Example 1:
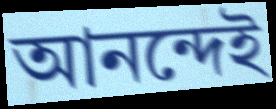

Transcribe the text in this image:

আনন্দেই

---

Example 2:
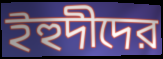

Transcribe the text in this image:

ইহুদীদের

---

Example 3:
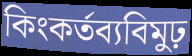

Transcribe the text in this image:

কিংকর্তব্যবিমুঢ়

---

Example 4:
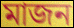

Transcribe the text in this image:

মাজন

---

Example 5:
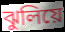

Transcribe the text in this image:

ঝুলিয়ে